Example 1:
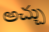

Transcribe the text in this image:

అచ్చు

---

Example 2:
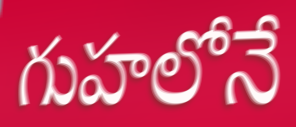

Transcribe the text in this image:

గుహలోనే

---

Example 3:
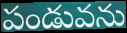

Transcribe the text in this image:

పండువను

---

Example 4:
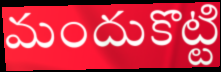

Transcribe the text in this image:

మందుకొట్టి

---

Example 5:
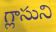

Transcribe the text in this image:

గ్లాసుని